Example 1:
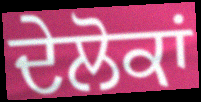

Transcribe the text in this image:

ਦੇਲੋਕਾਂ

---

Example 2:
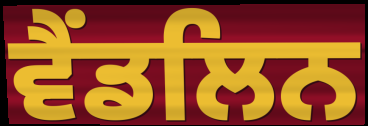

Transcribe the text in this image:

ਵੈਂਡਲਿਨ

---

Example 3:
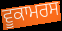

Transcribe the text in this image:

ਵੂਕਾਮਰਸ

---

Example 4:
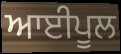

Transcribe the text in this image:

ਆਈਪੂਲ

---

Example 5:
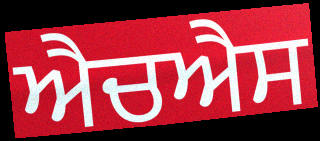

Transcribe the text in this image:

ਐਚਐਸ